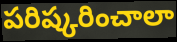
పరిష్కరించాలా